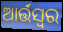
ଆର୍ତ୍ତସ୍ୱର